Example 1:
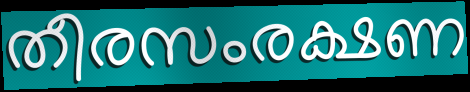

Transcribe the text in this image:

തീരസംരക്ഷണ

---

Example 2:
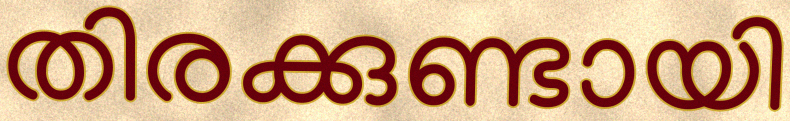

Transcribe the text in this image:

തിരക്കുണ്ടായി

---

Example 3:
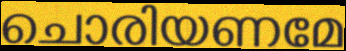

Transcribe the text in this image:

ചൊരിയണമേ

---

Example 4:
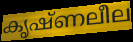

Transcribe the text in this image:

കൃഷ്ണലീല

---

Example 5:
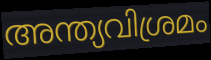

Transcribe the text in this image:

അന്ത്യവിശ്രമം